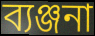
ব্যঞ্জনা